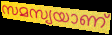
സമസ്യയാണ്